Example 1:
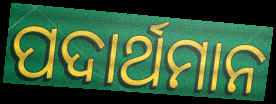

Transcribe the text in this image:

ପଦାର୍ଥମାନ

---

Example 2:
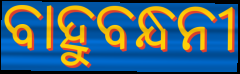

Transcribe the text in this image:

ବାହୁବନ୍ଧନୀ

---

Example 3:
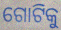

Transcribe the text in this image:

ଗୋଟିକୁ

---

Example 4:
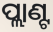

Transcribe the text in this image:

ପ୍ଲାଣ୍ଟ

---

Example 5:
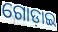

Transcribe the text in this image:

ଗୋଡ଼ାଇ